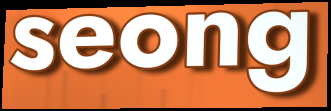
seong